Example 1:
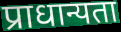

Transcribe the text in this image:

प्राधान्यता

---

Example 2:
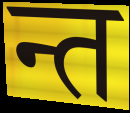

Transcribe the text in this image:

न्त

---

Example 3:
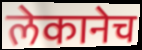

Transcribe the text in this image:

लेकानेच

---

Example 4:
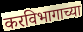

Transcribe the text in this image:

करविभागाच्या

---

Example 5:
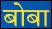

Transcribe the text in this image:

बोबा